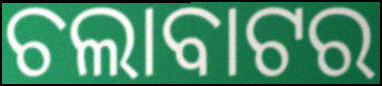
ଚଲାବାଟର